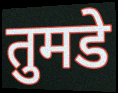
तुमडे